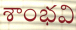
శాంభవి